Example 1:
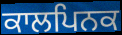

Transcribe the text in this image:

ਕਾਲਪਿਨਕ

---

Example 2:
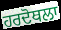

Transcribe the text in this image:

ਹਰਦੋਥਲਾ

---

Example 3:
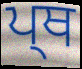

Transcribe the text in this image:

ਪ੍ਥ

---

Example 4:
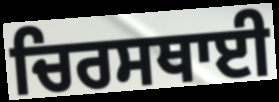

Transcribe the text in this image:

ਚਿਰਸਥਾਈ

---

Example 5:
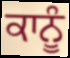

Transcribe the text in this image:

ਕਾਨੂੰ